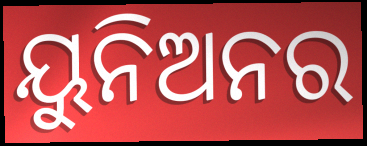
ୟୁନିଅନର